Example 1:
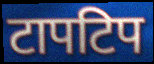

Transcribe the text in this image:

टापटिप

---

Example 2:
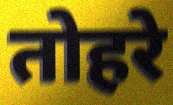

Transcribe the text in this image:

तोहरे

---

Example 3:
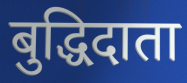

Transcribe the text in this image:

बुद्धिदाता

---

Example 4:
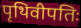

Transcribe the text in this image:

पृथिवीपतिः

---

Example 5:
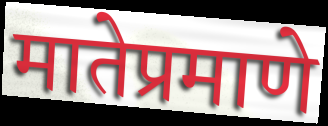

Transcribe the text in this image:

मातेप्रमाणे